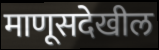
माणूसदेखील